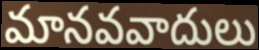
మానవవాదులు